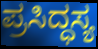
ಪ್ರಸಿದ್ಧಸ್ಯ